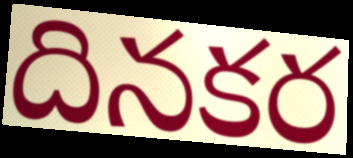
దినకర